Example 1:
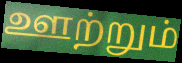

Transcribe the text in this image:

ஊற்றும்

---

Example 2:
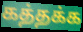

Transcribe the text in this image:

கத்தக்க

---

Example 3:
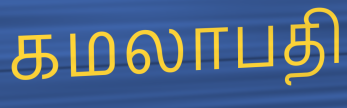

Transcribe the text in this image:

கமலாபதி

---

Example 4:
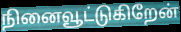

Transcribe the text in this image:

நினைவூட்டுகிறேன்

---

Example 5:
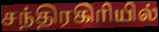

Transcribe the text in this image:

சந்திரகிரியில்